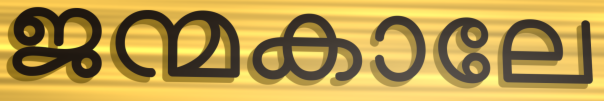
ജന്മകാലേ